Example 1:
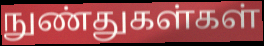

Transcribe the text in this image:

நுண்துகள்கள்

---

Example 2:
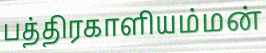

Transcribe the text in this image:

பத்திரகாளியம்மன்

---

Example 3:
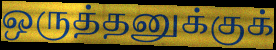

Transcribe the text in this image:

ஒருத்தனுக்குக்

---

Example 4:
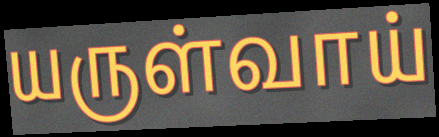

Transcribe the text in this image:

யருள்வாய்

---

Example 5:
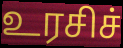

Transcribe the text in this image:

உரசிச்